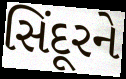
સિંદૂરને